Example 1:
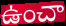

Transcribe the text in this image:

ఉంచా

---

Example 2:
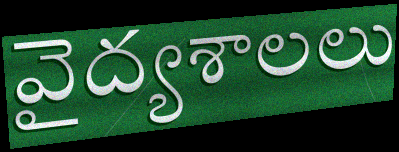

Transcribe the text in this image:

వైద్యశాలలు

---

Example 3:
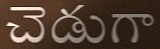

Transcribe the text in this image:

చెడుగా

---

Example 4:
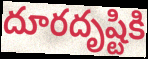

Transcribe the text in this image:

దూరదృష్టికి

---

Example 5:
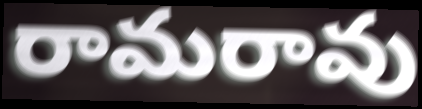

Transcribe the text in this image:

రామరావు